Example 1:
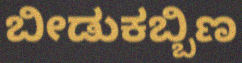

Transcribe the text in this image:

ಬೀಡುಕಬ್ಬಿಣ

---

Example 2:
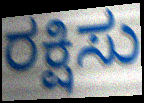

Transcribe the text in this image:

ರಕ್ಷಿಸು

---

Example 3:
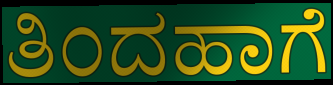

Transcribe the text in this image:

ತಿಂದಹಾಗೆ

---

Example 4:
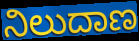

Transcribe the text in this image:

ನಿಲುದಾಣ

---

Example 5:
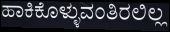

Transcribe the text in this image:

ಹಾಕಿಕೊಳ್ಳುವಂತಿರಲಿಲ್ಲ